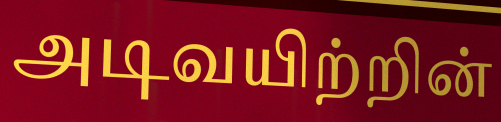
அடிவயிற்றின்